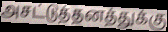
அசட்டுத்தனத்துக்கு